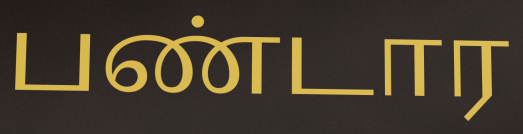
பண்டார